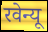
रवेन्यू